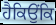
ਹੈਕਿਉਂਕਿ